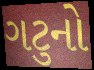
ગટુનો